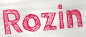
Rozin